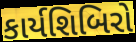
કાર્યશિબિરો